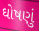
ઘોષણું